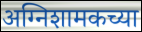
अग्निशामकच्या